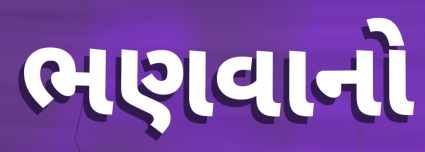
ભણવાનો